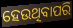
ହେଉଥିବାପରି